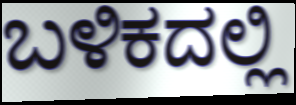
ಬಳಿಕದಲ್ಲಿ